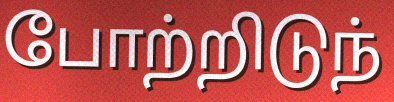
போற்றிடுந்